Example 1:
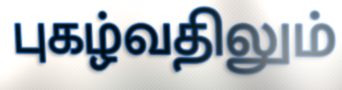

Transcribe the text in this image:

புகழ்வதிலும்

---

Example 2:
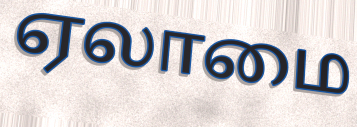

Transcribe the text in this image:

ஏலாமை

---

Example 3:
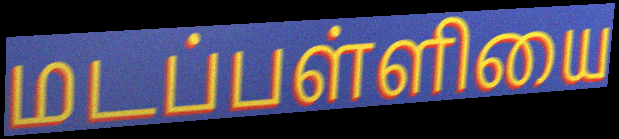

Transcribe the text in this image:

மடப்பள்ளியை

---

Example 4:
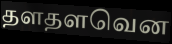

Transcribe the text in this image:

தளதளவென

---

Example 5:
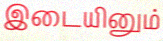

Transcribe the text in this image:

இடையினும்